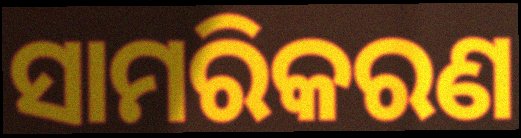
ସାମରିକରଣ